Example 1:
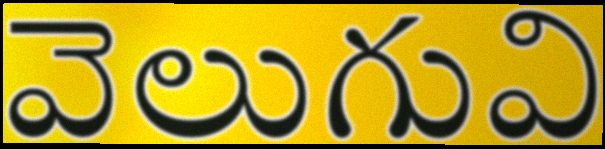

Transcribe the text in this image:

వెలుగువి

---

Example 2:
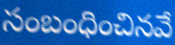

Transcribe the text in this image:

సంబంధించినవే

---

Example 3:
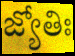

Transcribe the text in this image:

జ్యోతిః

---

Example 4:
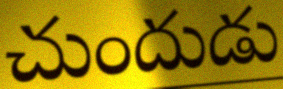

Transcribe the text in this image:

చుందుడు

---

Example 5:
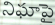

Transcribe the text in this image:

నిఘాపై